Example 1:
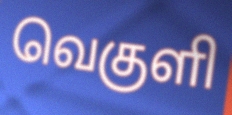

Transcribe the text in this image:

வெகுளி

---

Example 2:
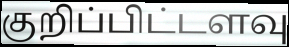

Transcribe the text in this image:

குறிப்பிட்டளவு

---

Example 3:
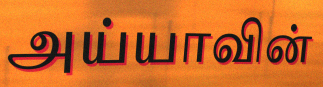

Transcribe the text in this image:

அய்யாவின்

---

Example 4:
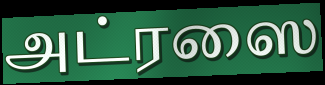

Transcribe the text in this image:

அட்ரஸை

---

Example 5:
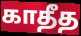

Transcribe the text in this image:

காதீத